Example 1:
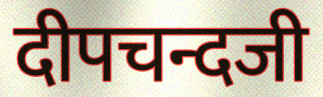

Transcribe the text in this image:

दीपचन्दजी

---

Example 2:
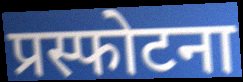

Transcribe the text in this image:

प्रस्फोटना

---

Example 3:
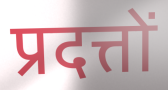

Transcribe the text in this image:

प्रदत्तों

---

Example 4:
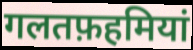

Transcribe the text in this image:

गलतफ़हमियां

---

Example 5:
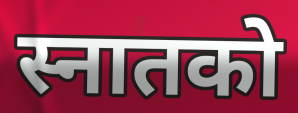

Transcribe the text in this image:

स्नातको